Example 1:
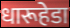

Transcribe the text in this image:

धारूहेडा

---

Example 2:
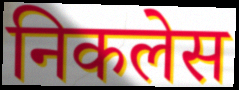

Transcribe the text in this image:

निकलेस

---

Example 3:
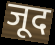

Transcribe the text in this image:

जूद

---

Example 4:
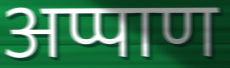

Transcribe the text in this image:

अप्पाण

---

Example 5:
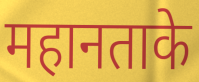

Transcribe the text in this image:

महानताके